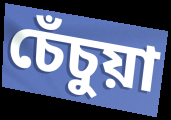
চেঁচুয়া